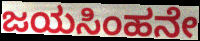
ಜಯಸಿಂಹನೇ